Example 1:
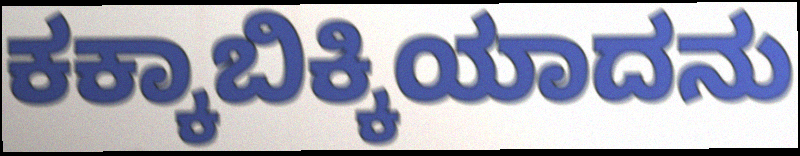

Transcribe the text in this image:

ಕಕ್ಕಾಬಿಕ್ಕಿಯಾದನು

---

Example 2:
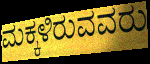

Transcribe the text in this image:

ಮಕ್ಕಳಿರುವವರು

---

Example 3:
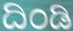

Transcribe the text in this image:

ದಿಂಡಿ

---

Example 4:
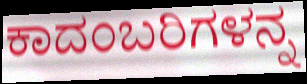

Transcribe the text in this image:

ಕಾದಂಬರಿಗಳನ್ನ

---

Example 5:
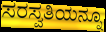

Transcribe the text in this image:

ಸರಸ್ವತಿಯನ್ನೂ